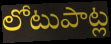
లోటుపాట్ల